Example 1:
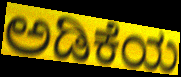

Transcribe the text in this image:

ಅಡಿಕೆಯ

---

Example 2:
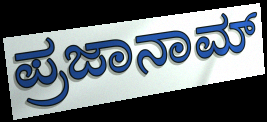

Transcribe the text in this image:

ಪ್ರಜಾನಾಮ್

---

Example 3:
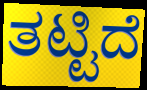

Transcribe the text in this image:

ತಟ್ಟಿದೆ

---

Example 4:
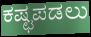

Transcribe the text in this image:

ಕಷ್ಟಪಡಲು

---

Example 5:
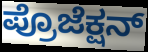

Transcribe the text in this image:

ಪ್ರೊಜೆಕ್ಷನ್